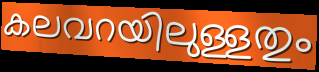
കലവറയിലുള്ളതും